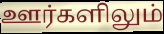
ஊர்களிலும்